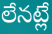
లేనట్లే